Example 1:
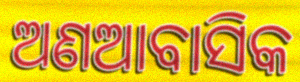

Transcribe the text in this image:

ଅଣଆବାସିକ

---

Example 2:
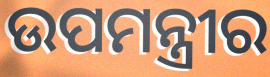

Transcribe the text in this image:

ଉପମନ୍ତ୍ରୀର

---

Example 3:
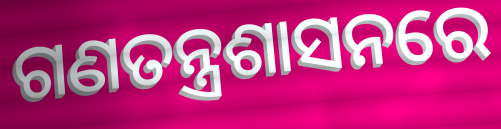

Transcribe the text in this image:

ଗଣତନ୍ତ୍ରଶାସନରେ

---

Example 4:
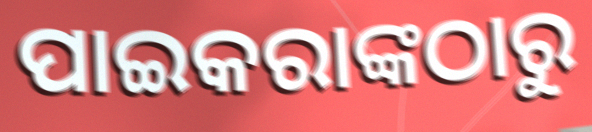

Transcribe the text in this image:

ପାଇକରାଙ୍କଠାରୁ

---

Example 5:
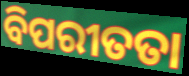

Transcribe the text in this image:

ବିପରୀତତା